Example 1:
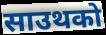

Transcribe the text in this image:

साउथको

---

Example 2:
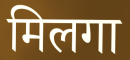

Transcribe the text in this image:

मिलगा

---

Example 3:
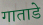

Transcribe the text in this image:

गाताडे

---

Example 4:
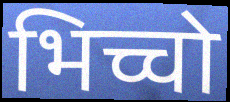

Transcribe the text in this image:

भिच्चो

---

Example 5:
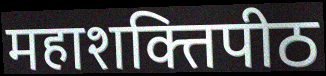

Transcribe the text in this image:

महाशक्तिपीठ